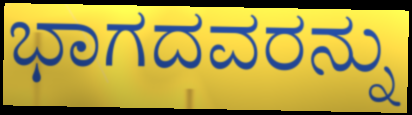
ಭಾಗದವರನ್ನು